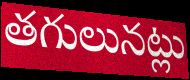
తగులునట్లు